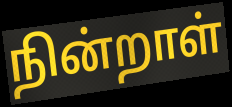
நின்றாள்